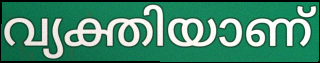
വ്യക്തിയാണ്